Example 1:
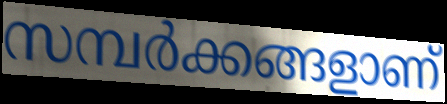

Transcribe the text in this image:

സമ്പർക്കങ്ങളാണ്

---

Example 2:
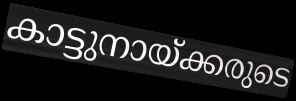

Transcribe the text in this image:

കാട്ടുനായ്ക്കരുടെ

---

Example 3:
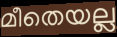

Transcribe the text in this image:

മീതെയല്ല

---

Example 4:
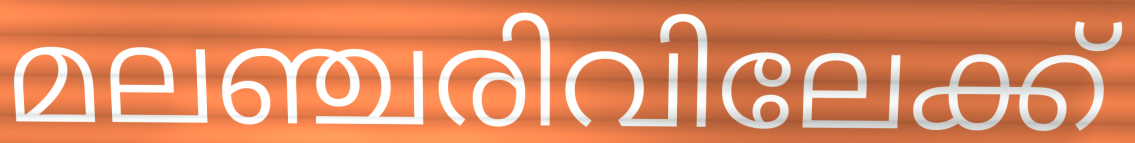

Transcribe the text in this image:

മലഞ്ചരിവിലേക്ക്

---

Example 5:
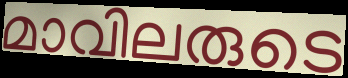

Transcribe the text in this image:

മാവിലരുടെ